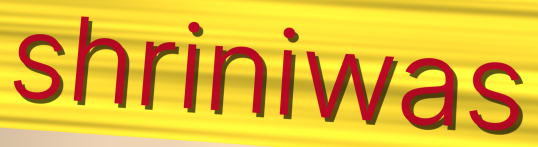
shriniwas